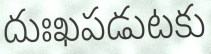
దుఃఖపడుటకు